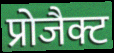
प्रोजैक्ट